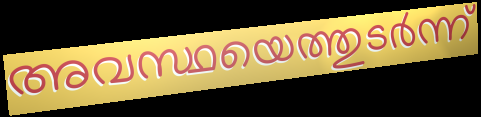
അവസ്ഥയെത്തുടർന്ന്